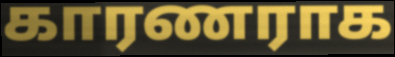
காரணராக